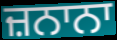
ਜ਼ਨਾਨਾ